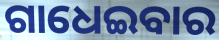
ଗାଧେଇବାର